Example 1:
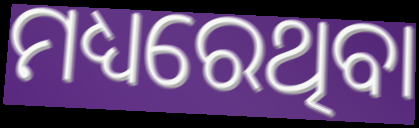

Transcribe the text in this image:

ମଧ୍ୟରେଥିବା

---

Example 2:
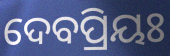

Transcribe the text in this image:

ଦେବପ୍ରିୟଃ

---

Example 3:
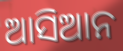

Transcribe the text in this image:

ଆସିଆନ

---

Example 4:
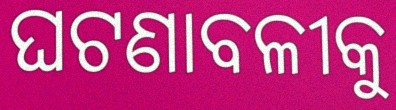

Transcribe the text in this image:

ଘଟଣାବଳୀକୁ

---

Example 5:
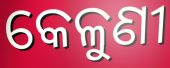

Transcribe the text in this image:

କେଳୁଣୀ